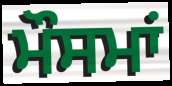
ਮੌਸਮਾਂ